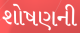
શોષણની